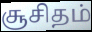
சூசிதம்